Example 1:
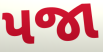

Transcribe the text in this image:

પજા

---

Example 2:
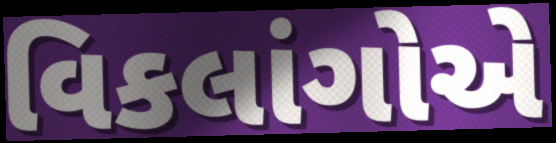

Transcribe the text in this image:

વિકલાંગોએ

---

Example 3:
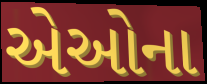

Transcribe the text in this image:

એઓના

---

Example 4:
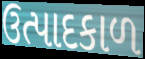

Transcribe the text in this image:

ઉત્પાદકાળ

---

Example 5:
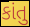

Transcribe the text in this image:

કાંતુ